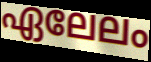
ഏലേലം